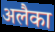
अलैका